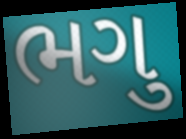
ભગુ